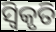
ସ୍ଵିକୃତି